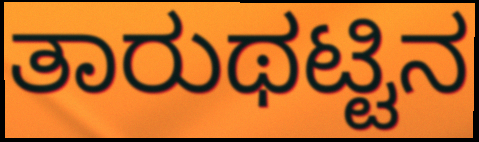
ತಾರುಥಟ್ಟಿನ